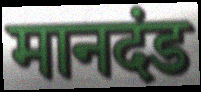
मानदंड